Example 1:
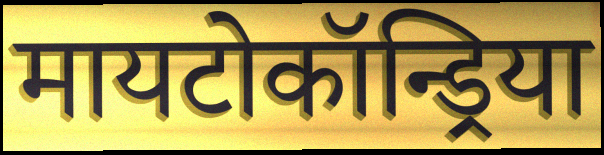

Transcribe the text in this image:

मायटोकॉन्ड्रिया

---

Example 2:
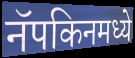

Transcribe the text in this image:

नॅपकिनमध्ये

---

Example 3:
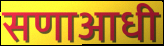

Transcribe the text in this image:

सणाआधी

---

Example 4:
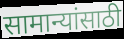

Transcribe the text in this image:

सामान्यांसाठी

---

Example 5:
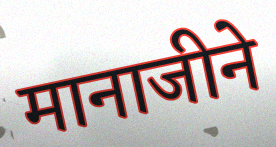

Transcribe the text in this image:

मानाजीने